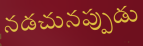
నడచునప్పుడు